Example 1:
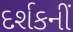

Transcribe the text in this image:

દર્શકનીં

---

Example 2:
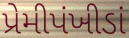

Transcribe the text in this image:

પ્રેમીપંખીડાં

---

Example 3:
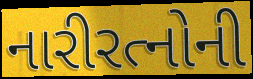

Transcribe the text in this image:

નારીરત્નોની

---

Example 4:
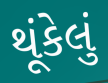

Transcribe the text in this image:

થૂંકેલું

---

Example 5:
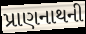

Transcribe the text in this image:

પ્રાણનાથની